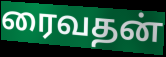
ரைவதன்